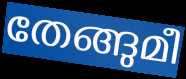
തേങ്ങുമീ